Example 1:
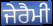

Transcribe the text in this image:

ਜੇਰੈਮੀ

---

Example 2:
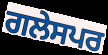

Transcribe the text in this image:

ਗਲੇਸਪਰ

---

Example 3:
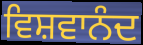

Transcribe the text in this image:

ਵਿਸ਼ਵਾਨੰਦ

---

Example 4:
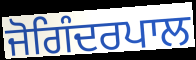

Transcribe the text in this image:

ਜੋਗਿੰਦਰਪਾਲ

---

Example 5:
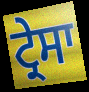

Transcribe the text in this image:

ਟ੍ਰੇਸਾ